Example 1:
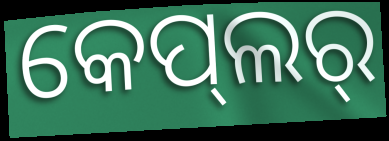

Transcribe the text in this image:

କେପ୍‌ଲର୍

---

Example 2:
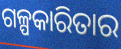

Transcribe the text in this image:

ଗଳ୍ପକାରିତାର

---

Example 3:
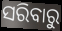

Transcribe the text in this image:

ସରିବାରୁ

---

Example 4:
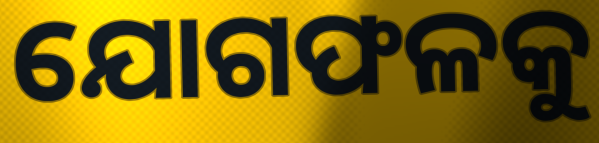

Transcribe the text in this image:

ଯୋଗଫଳକୁ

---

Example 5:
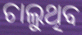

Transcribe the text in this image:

ଚାଲୁଥିବ